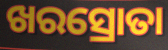
ଖରସ୍ରୋତା